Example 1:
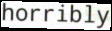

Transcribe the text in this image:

horribly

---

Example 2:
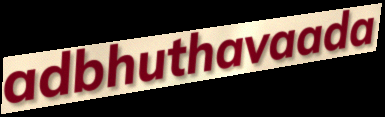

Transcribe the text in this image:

adbhuthavaada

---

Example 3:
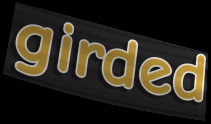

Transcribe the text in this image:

girded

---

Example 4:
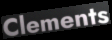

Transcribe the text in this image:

Clements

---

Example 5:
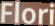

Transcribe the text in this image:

Flori